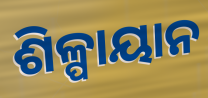
ଶିଳ୍ପାୟାନ